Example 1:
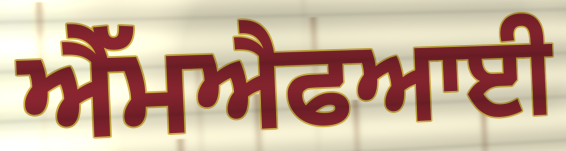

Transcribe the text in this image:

ਐੱਮਐਫਆਈ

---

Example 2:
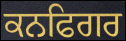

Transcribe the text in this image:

ਕਨਫਿਗਰ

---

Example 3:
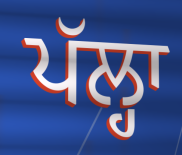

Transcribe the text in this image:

ਪੱਲ੍ਹਾ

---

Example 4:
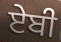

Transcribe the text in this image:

ਏਬੀ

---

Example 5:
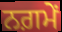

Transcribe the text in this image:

ਨਗ਼ਮੇਂ